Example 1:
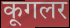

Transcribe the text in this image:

कूगलर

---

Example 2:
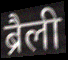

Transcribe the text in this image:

ब्रैली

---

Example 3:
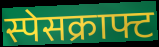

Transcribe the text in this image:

स्पेसक्राफ्ट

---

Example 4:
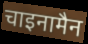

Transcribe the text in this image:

चाइनामैन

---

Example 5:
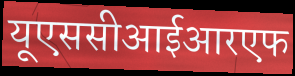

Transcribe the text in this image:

यूएससीआईआरएफ